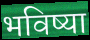
भविष्या